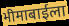
भीमाबाईला